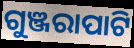
ଗୁଞ୍ଜରାପାଟି